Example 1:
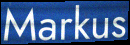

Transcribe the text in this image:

Markus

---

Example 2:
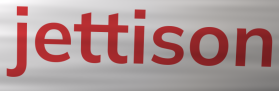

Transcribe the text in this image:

jettison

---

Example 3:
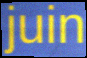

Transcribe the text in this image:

juin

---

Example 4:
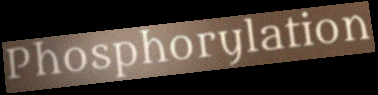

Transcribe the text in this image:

Phosphorylation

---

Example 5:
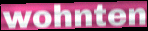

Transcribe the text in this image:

wohnten